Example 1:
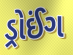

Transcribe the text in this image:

ડ્રોઈંગ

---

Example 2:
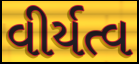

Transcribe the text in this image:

વીર્યત્વ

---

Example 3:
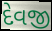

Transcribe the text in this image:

દેવજી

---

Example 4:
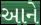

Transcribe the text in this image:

આને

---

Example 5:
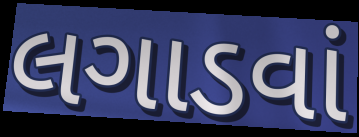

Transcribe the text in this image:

લગાડવાં